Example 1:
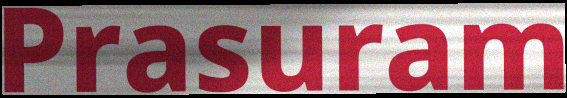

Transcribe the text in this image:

Prasuram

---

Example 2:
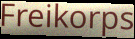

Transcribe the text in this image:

Freikorps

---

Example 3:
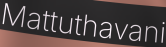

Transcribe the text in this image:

Mattuthavani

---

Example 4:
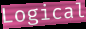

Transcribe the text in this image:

Logical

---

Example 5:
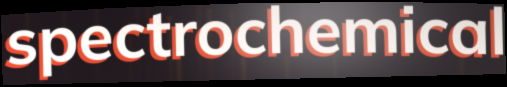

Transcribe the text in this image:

spectrochemical